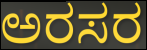
ಅರಸರ